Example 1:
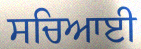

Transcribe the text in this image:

ਸਚਿਆਈ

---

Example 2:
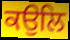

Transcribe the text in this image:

ਕਉਲਿ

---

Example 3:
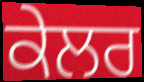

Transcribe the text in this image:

ਕੇਲਰ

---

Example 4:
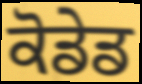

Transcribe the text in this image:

ਕੋਡੇਡ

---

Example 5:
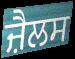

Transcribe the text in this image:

ਜ਼ੈਲਸ